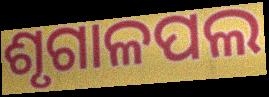
ଶୃଗାଳପଲ